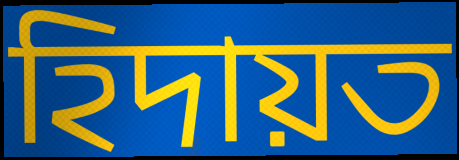
হিদায়ত